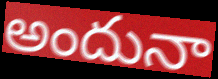
అందునా